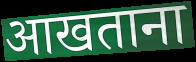
आखताना